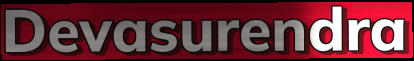
Devasurendra